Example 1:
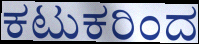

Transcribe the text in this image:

ಕಟುಕರಿಂದ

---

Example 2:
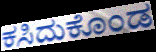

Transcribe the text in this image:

ಕಸಿದುಕೊಂಡ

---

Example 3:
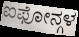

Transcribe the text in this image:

ಐಫೋನ್ಗಳ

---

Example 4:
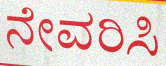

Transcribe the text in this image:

ನೇವರಿಸಿ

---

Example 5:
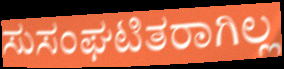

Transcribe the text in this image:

ಸುಸಂಘಟಿತರಾಗಿಲ್ಲ